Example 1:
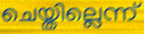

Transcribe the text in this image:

ചെയ്തില്ലെന്ന്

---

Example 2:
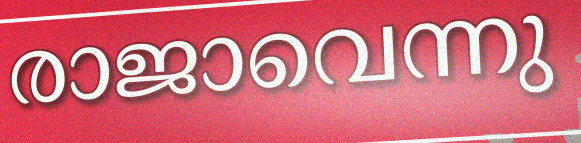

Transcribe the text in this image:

രാജാവെന്നു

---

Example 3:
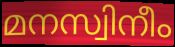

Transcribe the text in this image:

മനസ്വിനീം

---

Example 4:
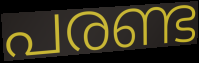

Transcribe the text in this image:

പരണ്ട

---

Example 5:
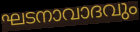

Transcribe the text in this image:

ഘടനാവാദവും